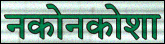
नकोनकोशा